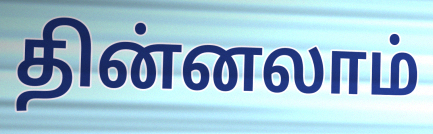
தின்னலாம்